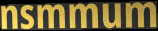
nsmmum